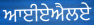
ਆਈਏਐਲਏ